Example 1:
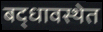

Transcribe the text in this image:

बद्धावस्थेत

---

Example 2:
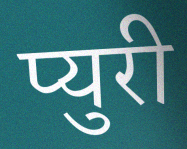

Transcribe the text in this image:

प्युरी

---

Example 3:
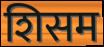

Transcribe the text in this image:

शिसम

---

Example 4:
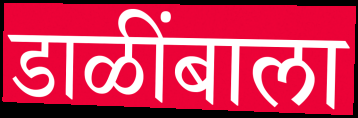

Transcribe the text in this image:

डाळींबाला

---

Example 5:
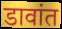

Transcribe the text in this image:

डावांत